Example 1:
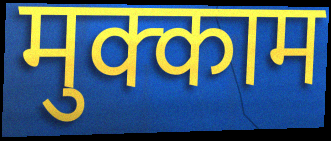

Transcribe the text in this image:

मुक्‍काम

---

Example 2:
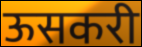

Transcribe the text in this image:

ऊसकरी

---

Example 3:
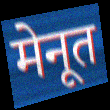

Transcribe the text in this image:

मेनूत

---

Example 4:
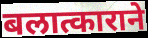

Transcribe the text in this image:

बलात्काराने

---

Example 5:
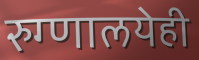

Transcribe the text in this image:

रुग्णालयेही